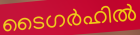
ടൈഗർഹിൽ